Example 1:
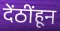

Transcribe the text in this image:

देंठींहून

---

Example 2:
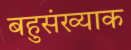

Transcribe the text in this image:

बहुसंख्याक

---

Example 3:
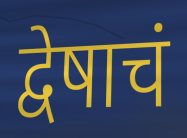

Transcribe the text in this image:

द्वेषाचं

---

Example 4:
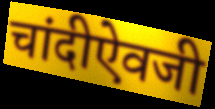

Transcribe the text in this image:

चांदीऐवजी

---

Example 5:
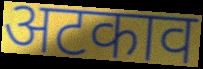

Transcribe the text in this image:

अटकाव